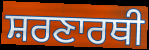
ਸ਼ਰਣਾਰਥੀ